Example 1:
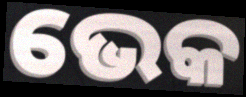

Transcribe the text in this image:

ଭେକ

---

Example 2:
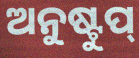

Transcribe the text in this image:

ଅନୁଷ୍ଟୁପ୍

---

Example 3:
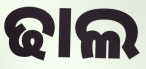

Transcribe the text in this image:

ଢାଲ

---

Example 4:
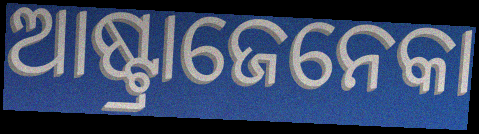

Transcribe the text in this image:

ଆଷ୍ଟ୍ରାଜେନେକା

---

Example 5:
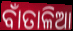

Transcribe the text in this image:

ବାଁତାଳିଆ